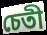
চেতী